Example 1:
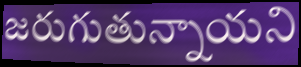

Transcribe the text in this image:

జరుగుతున్నాయని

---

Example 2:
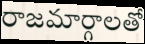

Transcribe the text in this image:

రాజమార్గాలతో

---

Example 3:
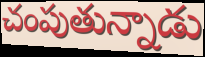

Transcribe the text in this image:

చంపుతున్నాడు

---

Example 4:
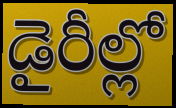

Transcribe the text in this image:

డైరీల్లో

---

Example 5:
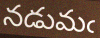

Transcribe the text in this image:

నడుమఁ